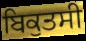
ਬਿਕੁਤਸੀ